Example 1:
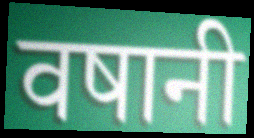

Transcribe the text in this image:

वषानी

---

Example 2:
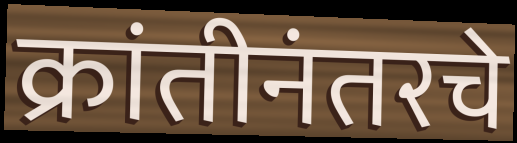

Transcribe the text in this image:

क्रांतीनंतरचे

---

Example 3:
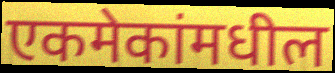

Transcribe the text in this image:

एकमेकांमधील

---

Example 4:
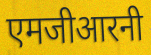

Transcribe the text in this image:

एमजीआरनी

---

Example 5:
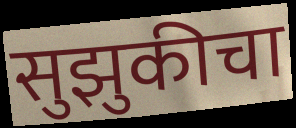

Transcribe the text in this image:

सुझुकीचा